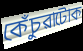
কেঁচুৱাটোক